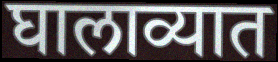
घालाव्यात